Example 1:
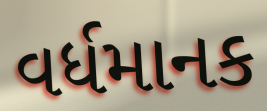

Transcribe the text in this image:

વર્ધમાનક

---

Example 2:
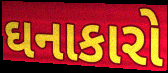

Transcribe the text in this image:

ઘનાકારો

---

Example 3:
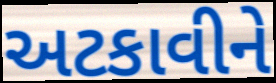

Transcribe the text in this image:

અટકાવીને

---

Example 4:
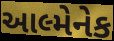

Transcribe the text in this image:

આલ્મેનેક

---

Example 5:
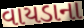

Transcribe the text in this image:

વાયડાના